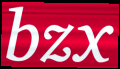
bzx